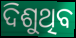
ଦିଶୁଥିବ